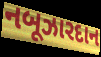
નબૂઝારદાન